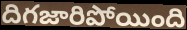
దిగజారిపోయింది